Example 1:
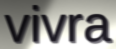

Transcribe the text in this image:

vivra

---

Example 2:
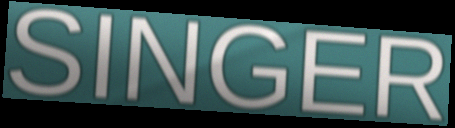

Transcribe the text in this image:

SINGER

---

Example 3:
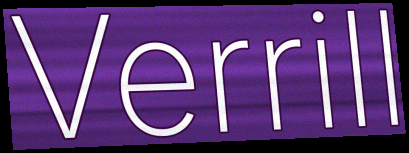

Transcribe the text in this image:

Verrill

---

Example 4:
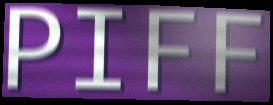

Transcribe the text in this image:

PIFF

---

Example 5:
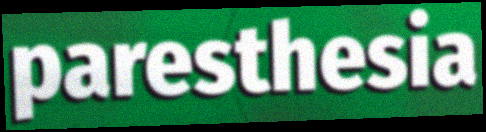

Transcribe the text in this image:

paresthesia